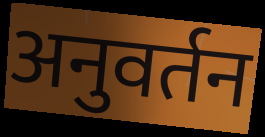
अनुवर्तन